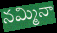
నమ్మినా